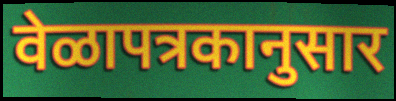
वेळापत्रकानुसार